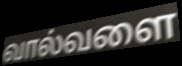
வால்வளை